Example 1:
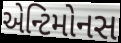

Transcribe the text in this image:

એન્ટિમોનસ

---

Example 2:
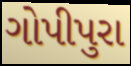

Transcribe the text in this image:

ગોપીપુરા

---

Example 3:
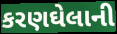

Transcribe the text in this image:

કરણઘેલાની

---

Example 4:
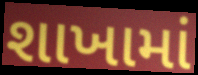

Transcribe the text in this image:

શાખામાં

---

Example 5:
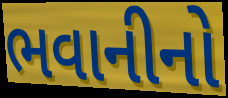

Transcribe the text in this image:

ભવાનીનો